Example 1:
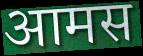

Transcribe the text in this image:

आमस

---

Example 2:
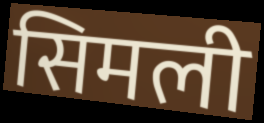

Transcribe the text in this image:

सिमली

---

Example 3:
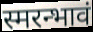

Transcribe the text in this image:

स्मरन्भावं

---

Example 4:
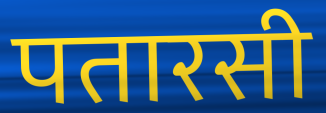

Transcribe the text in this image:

पतारसी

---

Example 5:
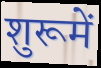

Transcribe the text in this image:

शुरूमें